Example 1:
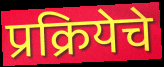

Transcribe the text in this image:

प्रक्रियेचे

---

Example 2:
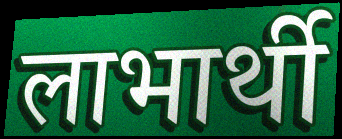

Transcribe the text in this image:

लाभार्थी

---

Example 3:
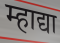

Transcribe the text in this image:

म्हाद्या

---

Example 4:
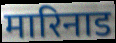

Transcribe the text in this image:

मारिनाड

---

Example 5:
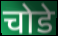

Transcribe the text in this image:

चोडे